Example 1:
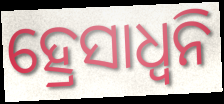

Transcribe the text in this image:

ହ୍ରେସାଧ୍ୱନି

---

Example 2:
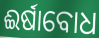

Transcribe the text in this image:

ଈର୍ଷାବୋଧ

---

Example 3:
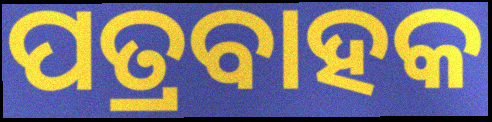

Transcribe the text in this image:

ପତ୍ରବାହକ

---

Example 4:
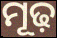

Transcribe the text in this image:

ମୂଢ଼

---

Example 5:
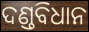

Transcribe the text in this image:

ଦଣ୍ଡବିଧାନ